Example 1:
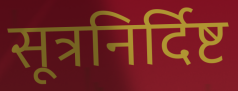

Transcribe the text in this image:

सूत्रनिर्दिष्ट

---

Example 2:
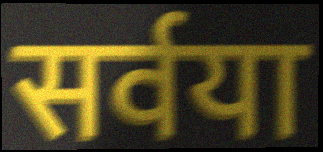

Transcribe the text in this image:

सर्वया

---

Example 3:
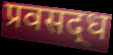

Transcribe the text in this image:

प्रवसद्ध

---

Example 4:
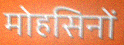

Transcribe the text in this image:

मोहसिनों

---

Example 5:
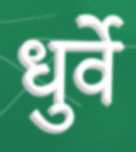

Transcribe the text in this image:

धुर्वे